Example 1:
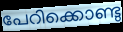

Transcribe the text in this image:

പേറിക്കൊണ്ടു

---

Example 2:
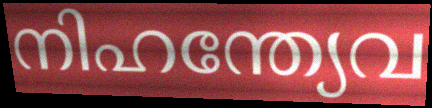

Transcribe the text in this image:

നിഹന്ത്യേവ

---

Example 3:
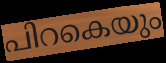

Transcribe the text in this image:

പിറകെയും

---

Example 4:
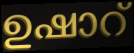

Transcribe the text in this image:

ഉഷാറ്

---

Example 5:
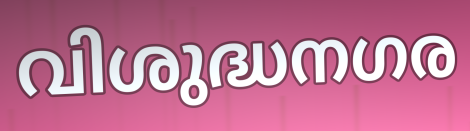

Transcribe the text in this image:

വിശുദ്ധനഗര